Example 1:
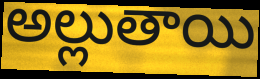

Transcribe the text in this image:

అల్లుతాయి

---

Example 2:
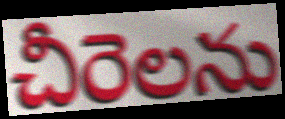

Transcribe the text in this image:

చీరెలను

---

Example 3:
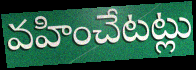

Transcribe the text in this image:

వహించేటట్లు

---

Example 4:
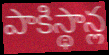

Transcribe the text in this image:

పాకిస్థాన్ల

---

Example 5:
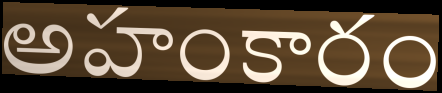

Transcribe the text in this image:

అహంకారం